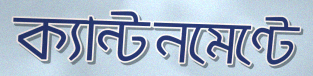
ক্যান্টনমেণ্টে